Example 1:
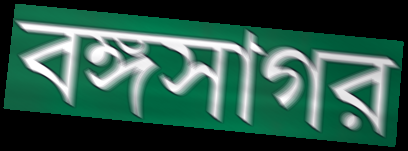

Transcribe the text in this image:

বঙ্গসাগর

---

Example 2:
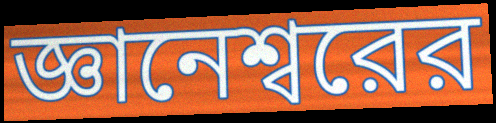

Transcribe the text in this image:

জ্ঞানেশ্বরের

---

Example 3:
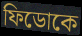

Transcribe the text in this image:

ফিডোকে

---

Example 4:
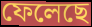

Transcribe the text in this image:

ফেলেছে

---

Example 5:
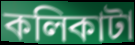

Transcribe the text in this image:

কলিকাটা